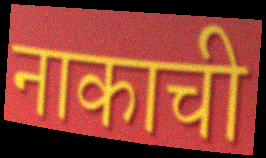
नाकाची